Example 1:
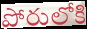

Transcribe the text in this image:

పోరులోకి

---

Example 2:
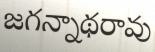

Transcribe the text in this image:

జగన్నాథరావు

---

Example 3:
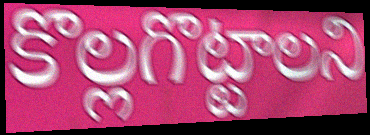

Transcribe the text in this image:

కొల్లగొట్టాలని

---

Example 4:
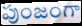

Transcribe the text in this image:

పుంజంగా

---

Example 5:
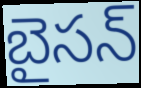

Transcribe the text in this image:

బైసన్